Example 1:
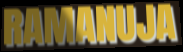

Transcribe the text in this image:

RAMANUJA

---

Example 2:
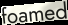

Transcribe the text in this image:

foamed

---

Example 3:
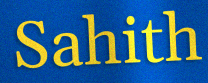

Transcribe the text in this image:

Sahith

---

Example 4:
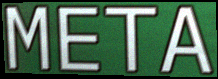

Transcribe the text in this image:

META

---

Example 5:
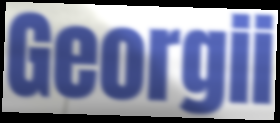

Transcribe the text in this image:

Georgii